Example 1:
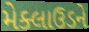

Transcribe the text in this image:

મેક્લાઉડને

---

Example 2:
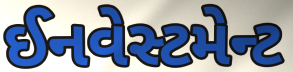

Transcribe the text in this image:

ઈનવેસ્ટમેન્ટ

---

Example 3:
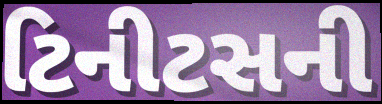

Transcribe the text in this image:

ટિનીટસની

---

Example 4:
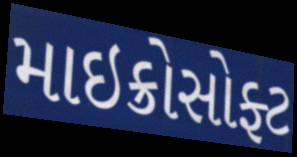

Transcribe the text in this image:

માઇક્રોસોફ્ટ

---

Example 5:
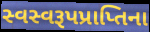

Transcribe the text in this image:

સ્વસ્વરૂપપ્રાપ્તિના